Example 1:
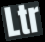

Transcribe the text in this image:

Ltr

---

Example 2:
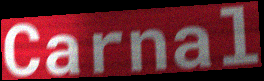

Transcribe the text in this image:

Carnal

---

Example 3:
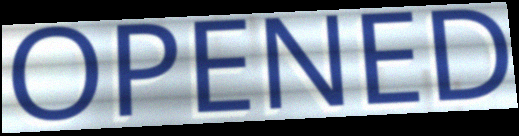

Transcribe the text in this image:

OPENED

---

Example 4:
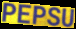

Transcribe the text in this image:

PEPSU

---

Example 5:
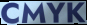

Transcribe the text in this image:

CMYK